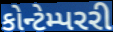
કોન્ટેમ્પરરી